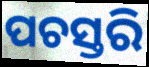
ପଚସ୍ତରି